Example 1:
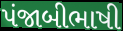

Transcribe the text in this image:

પંજાબીભાષી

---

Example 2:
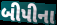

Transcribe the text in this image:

બીપીના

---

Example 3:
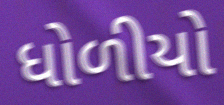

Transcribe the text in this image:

ધોળીયો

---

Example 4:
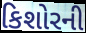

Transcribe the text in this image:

કિશોરની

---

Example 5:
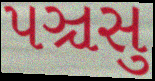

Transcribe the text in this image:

પઞ્ચસુ